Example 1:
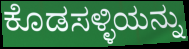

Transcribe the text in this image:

ಕೊಡಸಳ್ಳಿಯನ್ನು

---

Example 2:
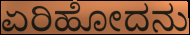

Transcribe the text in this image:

ಏರಿಹೋದನು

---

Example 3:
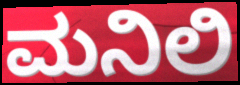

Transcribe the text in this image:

ಮನಿಲಿ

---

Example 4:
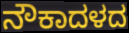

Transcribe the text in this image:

ನೌಕಾದಳದ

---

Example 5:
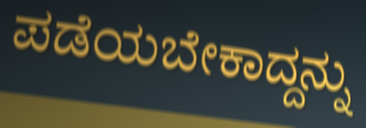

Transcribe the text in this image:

ಪಡೆಯಬೇಕಾದ್ದನ್ನು